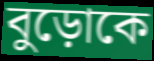
বুড়োকে